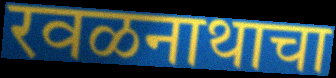
रवळनाथाचा